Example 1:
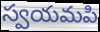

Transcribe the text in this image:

స్వయమపి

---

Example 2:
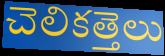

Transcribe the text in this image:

చెలికత్తెలు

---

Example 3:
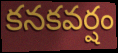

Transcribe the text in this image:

కనకవర్షం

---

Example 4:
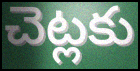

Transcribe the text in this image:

చెట్లకు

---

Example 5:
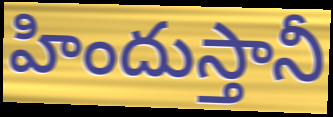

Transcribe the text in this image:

హిందుస్తానీ